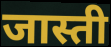
जास्ती